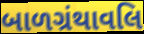
બાળગ્રંથાવલિ